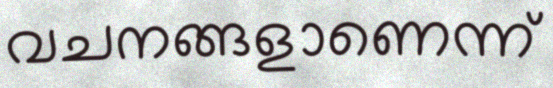
വചനങ്ങളാണെന്ന്